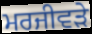
ਮਰਜੀਵੜੇ